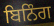
ਬਿਨਿੰਗ